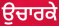
ਉਚਾਰਕੇ